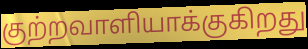
குற்றவாளியாக்குகிறது